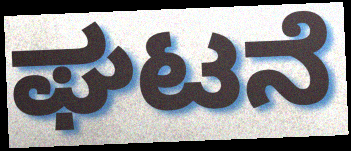
ಘಟನೆ